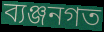
ব্যঞ্জনগত